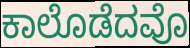
ಕಾಲೊಡೆದವೊ